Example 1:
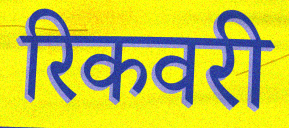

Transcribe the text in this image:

रिकवरी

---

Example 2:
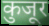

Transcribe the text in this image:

कुजूर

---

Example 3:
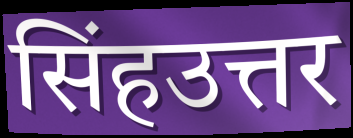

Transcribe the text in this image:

सिंहउत्तर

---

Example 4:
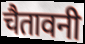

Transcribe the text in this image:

चैतावनी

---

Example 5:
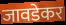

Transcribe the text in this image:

जावडेकर